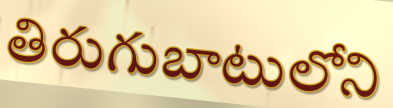
తిరుగుబాటులోని